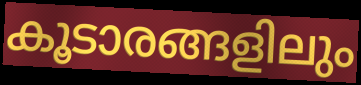
കൂടാരങ്ങളിലും